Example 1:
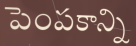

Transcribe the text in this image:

పెంపకాన్ని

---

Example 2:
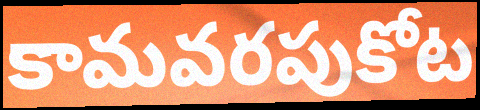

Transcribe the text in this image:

కామవరపుకోట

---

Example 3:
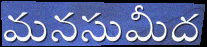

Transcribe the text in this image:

మనసుమీద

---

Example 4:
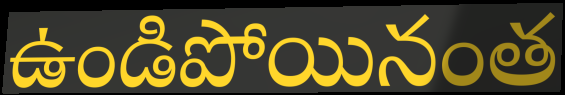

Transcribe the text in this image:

ఉండిపోయినంత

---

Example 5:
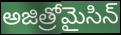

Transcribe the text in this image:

అజిత్రోమైసిన్